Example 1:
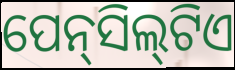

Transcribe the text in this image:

ପେନ୍‍ସିଲ୍‍ଟିଏ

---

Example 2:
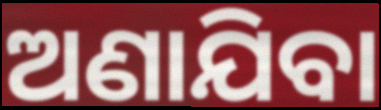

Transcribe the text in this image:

ଅଣାଯିବା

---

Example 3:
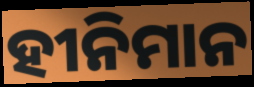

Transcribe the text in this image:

ହୀନିମାନ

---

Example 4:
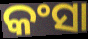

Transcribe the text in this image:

କଂସା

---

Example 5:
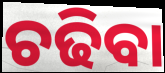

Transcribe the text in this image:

ଚଢିବା